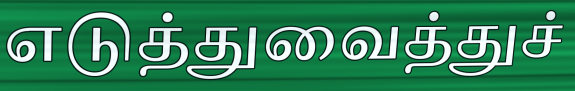
எடுத்துவைத்துச்